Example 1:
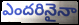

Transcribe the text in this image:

ఎందరినైనా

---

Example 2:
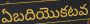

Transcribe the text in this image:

ఏబదియొకటవ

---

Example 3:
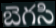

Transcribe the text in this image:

బెగసి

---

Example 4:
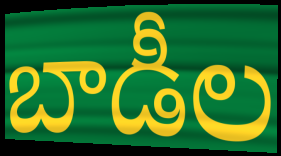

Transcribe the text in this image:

బాడీల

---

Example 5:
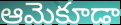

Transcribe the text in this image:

ఆమెకూడా